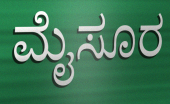
ಮೈಸೂರ